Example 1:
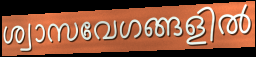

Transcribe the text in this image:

ശ്വാസവേഗങ്ങളിൽ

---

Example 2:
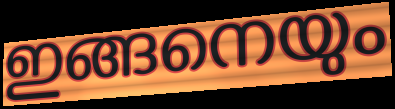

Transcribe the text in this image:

ഇങ്ങനെയും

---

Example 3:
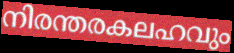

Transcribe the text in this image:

നിരന്തരകലഹവും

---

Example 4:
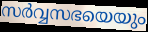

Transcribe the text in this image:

സർവ്വസഭയെയും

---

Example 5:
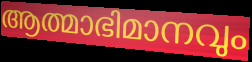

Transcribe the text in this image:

ആത്മാഭിമാനവും